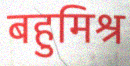
बहुमिश्र